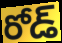
రోడ్